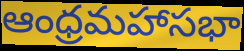
ఆంధ్రమహాసభా